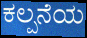
ಕಲ್ಪನೆಯ